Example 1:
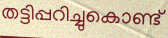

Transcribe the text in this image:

തട്ടിപ്പറിച്ചുകൊണ്ട്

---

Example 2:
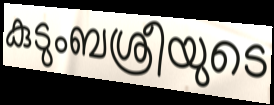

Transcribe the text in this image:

കുടുംബശ്രീയുടെ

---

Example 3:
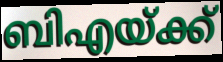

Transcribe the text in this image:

ബിഎയ്ക്ക്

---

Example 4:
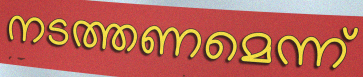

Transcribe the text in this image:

നടത്തണമെന്ന്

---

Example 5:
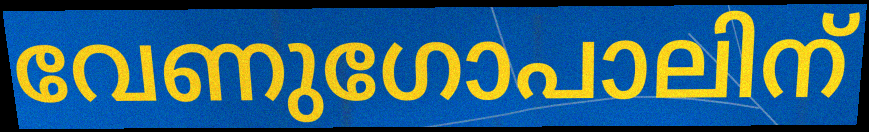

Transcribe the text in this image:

വേണുഗോപാലിന്